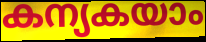
കന്യകയാം